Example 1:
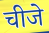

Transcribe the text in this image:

चीजे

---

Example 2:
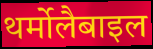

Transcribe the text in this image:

थर्मोलैबाइल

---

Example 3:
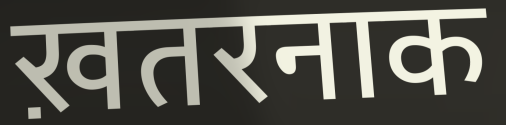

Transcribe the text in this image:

ख़तरनाक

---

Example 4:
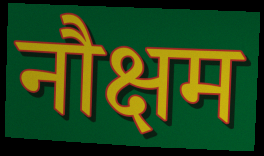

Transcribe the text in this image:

नौक्षम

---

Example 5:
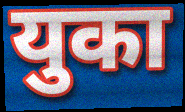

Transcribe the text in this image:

युका